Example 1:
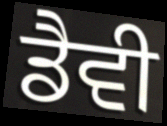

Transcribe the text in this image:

ਡੈਵੀ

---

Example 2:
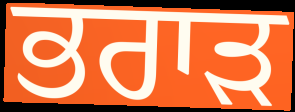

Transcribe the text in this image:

ਭਰਾੜ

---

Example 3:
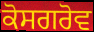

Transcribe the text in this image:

ਕੋਸਗਰੋਵ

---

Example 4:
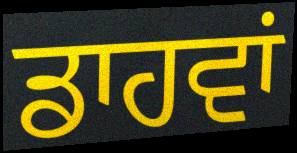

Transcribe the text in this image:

ਡਾਹਵਾਂ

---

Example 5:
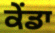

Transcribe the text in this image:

ਕੇਂਡਾ